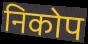
निकोप